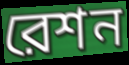
রেশন